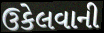
ઉકેલવાની